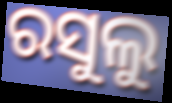
ରସୁଲୁ